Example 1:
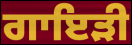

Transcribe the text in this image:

ਗਾਇੜੀ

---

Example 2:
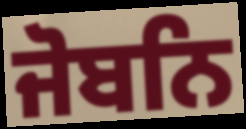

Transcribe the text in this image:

ਜੋਬਨਿ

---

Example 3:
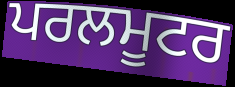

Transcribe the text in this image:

ਪਰਲਮੂਟਰ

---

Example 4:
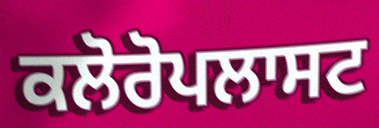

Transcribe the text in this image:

ਕਲੋਰੋਪਲਾਸਟ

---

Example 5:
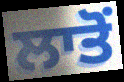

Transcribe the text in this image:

ਲਾਤੋਂ